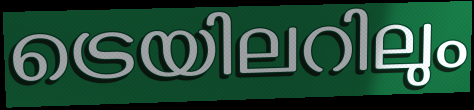
ട്രെയിലറിലും